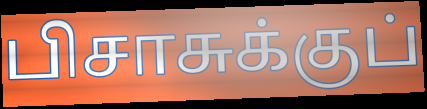
பிசாசுக்குப்